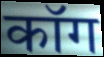
कॉग